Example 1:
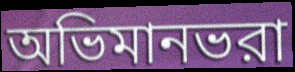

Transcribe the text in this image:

অভিমানভরা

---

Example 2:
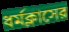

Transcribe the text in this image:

ধর্মক্লাসের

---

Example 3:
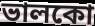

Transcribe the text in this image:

ভালকো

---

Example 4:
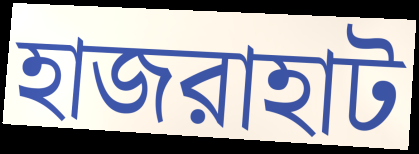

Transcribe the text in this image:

হাজরাহাট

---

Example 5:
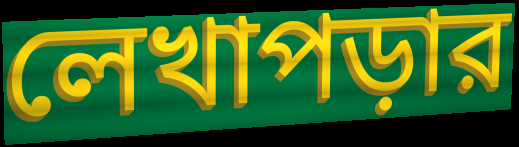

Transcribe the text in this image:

লেখাপড়ার